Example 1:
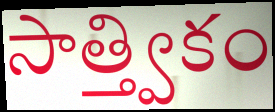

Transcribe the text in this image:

సాత్త్వికం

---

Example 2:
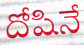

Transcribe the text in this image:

దోషినే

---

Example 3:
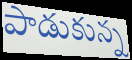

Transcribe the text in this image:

పాడుకున్న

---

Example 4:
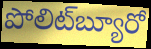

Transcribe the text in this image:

పోలిట్‌బ్యూరో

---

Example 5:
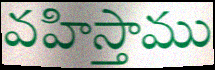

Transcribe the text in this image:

వహిస్తాము